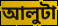
আলুটা